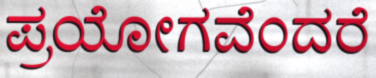
ಪ್ರಯೋಗವೆಂದರೆ